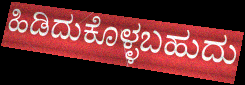
ಹಿಡಿದುಕೊಳ್ಳಬಹುದು